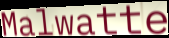
Malwatte